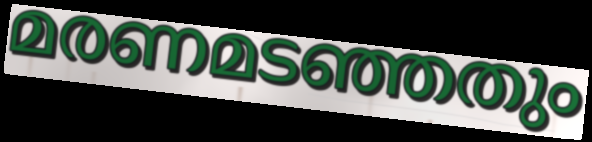
മരണമടഞ്ഞതും